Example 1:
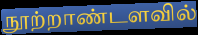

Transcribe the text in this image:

நூற்றாண்டளவில்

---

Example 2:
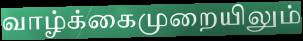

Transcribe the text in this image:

வாழ்க்கைமுறையிலும்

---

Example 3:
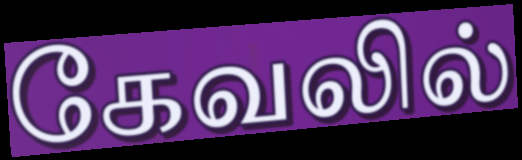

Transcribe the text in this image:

கேவலில்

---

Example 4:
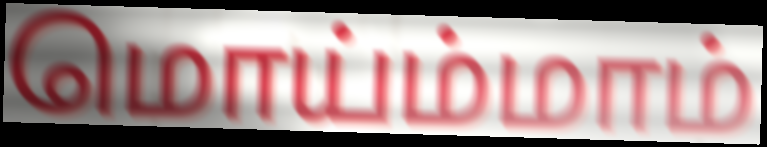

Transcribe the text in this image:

மொய்ம்மாம்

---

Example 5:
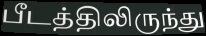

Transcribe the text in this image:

பீடத்திலிருந்து